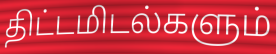
திட்டமிடல்களும்